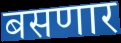
बसणार